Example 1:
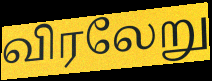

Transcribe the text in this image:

விரலேறு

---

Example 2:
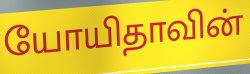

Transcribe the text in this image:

யோயிதாவின்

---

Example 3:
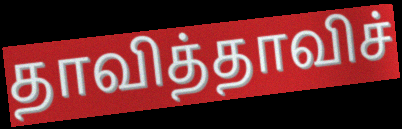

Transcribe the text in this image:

தாவித்தாவிச்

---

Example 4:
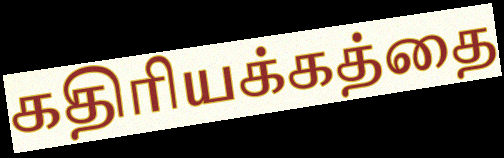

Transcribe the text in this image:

கதிரியக்கத்தை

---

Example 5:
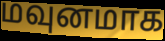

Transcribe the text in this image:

மவுனமாக